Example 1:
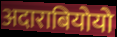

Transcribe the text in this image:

अदाराबियोयो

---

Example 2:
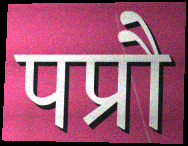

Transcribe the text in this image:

पप्रौ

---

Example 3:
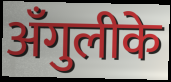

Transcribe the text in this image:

अँगुलीके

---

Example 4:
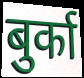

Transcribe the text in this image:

बुर्का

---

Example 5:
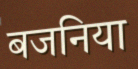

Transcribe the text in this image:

बजनिया